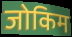
जोकिम